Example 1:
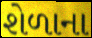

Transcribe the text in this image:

શેળાના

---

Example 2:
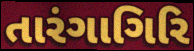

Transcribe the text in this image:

તારંગાગિરિ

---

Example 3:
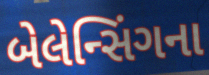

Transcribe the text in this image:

બેલેન્સિંગના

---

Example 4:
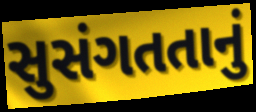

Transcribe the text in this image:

સુસંગતતાનું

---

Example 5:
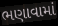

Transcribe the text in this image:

ભણાવામાં